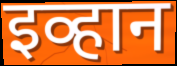
इव्हान